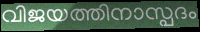
വിജയത്തിനാസ്പദം